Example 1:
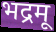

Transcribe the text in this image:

भद्रमू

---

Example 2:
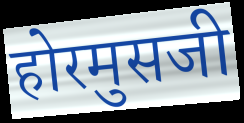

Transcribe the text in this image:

होरमुसजी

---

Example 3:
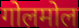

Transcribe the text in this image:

गोलमोल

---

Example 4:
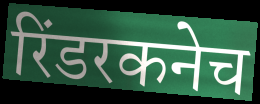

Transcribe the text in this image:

रिंडरकनेच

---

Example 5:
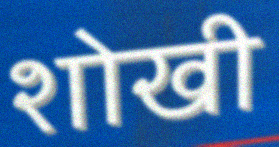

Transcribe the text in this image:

शोखी